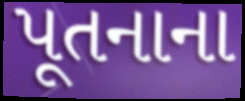
પૂતનાના